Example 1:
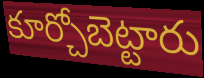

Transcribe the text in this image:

కూర్చోబెట్టారు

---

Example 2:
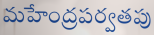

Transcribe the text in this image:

మహేంద్రపర్వతపు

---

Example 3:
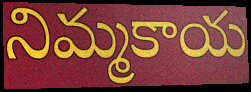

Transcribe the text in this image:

నిమ్మకాయ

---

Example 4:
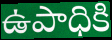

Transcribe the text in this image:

ఉపాధికి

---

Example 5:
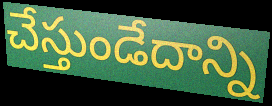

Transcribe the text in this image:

చేస్తుండేదాన్ని